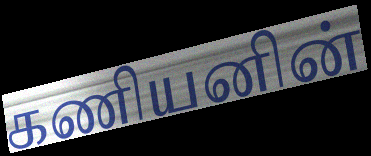
கணியனின்